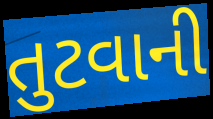
તુટવાની